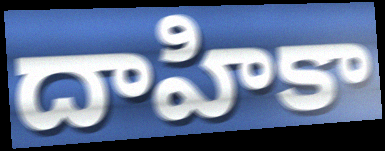
దాహికా